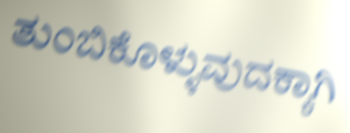
ತುಂಬಿಕೊಳ್ಳುವುದಕ್ಕಾಗಿ